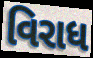
વિરાધ